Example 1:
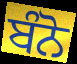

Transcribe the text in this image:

ਬੰਨੋ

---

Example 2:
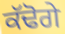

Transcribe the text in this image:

ਕੱਢੋਗੇ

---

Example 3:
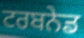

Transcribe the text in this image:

ਟਰਬਨੇਡ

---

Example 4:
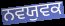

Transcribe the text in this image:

ਨਵਯੁਵਕ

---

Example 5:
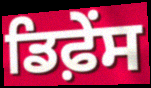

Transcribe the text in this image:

ਡਿਫ਼ੇਂਸ